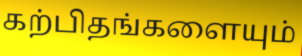
கற்பிதங்களையும்